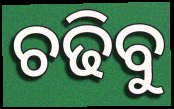
ଚଢିବୁ